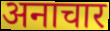
अनाचार